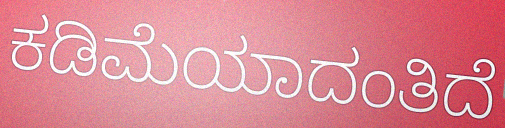
ಕಡಿಮೆಯಾದಂತಿದೆ